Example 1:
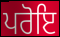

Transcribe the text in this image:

ਪਰੋਇ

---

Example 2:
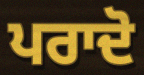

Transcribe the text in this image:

ਪਰਾਦੋ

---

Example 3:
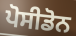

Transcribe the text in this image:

ਪੋਸੀਡੋਨ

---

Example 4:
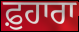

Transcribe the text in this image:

ਫ਼ੁਹਾਰਾ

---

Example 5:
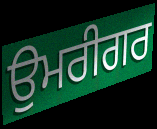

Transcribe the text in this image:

ਉਮਰੀਗਰ